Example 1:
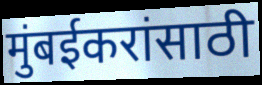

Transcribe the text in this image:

मुंबईकरांसाठी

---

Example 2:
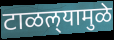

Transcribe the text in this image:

टाळल्यामुळे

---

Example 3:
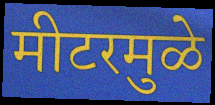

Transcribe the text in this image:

मीटरमुळे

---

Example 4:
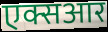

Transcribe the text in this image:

एक्सआर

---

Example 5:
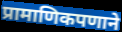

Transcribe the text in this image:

प्रामाणिकपणाने